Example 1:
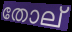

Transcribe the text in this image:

തോല്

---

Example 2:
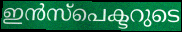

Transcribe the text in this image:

ഇൻസ്പെക്ടറുടെ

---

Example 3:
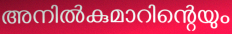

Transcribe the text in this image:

അനിൽകുമാറിന്റെയും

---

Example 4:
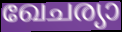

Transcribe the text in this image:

ഖേചര്യാ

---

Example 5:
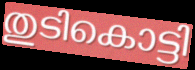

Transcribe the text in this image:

തുടികൊട്ടി